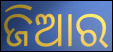
ଜିଆର